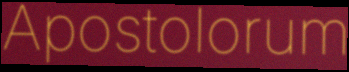
Apostolorum